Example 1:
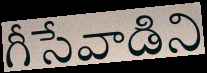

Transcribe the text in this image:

గీసేవాడిని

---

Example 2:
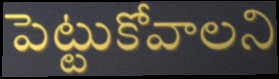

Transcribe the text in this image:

పెట్టుకోవాలని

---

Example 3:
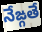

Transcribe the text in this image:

నేఙ్గతే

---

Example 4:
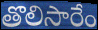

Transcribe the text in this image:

తొలిసారేం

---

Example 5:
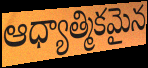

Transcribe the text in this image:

ఆధ్యాత్మికమైన